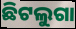
ଛିଟଲୁଗା